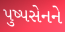
પુષ્પસેનને